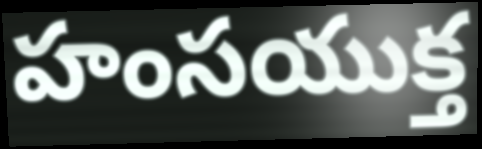
హంసయుక్త